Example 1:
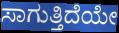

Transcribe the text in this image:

ಸಾಗುತ್ತಿದೆಯೇ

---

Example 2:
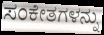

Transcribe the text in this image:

ಸಂಕೇತಗಳನ್ನು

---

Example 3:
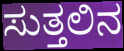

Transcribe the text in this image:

ಸುತ್ತಲಿನ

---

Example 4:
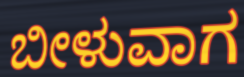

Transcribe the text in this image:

ಬೀಳುವಾಗ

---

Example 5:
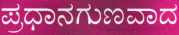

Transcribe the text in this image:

ಪ್ರಧಾನಗುಣವಾದ